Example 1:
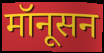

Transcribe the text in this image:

मॉनूसन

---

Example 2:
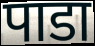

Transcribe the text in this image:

पाडा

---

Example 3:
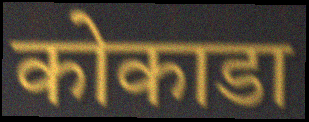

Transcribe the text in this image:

कोकाडा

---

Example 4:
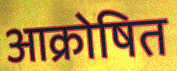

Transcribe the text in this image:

आक्रोषित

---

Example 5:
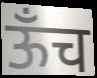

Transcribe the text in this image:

ऊँच